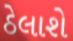
ઠેલાશે